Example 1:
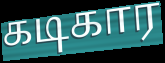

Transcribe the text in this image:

கடிகார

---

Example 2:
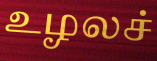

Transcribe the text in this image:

உழலச்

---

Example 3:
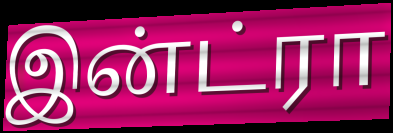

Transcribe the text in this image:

இன்ட்ரா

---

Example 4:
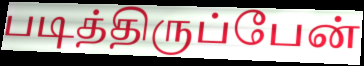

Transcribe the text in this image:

படித்திருப்பேன்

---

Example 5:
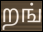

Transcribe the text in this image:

றங்